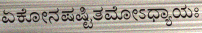
ಏಕೋನಷಷ್ಟಿತಮೋಽಧ್ಯಾಯಃ